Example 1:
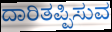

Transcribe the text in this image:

ದಾರಿತಪ್ಪಿಸುವ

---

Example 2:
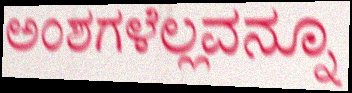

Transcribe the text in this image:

ಅಂಶಗಳೆಲ್ಲವನ್ನೂ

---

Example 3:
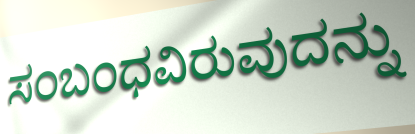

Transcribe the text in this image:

ಸಂಬಂಧವಿರುವುದನ್ನು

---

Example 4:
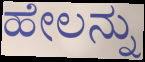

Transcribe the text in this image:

ಹೇಲನ್ನು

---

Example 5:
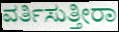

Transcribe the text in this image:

ವರ್ತಿಸುತ್ತೀರಾ